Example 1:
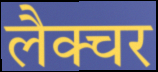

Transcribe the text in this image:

लैक्चर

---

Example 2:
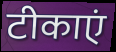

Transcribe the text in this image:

टीकाएं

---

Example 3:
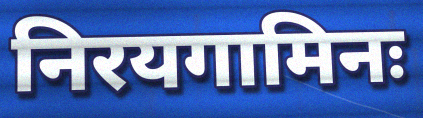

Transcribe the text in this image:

निरयगामिनः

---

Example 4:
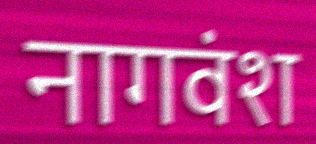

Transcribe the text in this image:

नागवंश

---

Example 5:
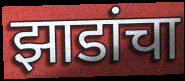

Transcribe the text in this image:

झाडांचा